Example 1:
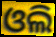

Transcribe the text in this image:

ଓଲି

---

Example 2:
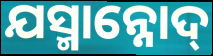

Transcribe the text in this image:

ଯସ୍ମାନ୍ନୋଦ୍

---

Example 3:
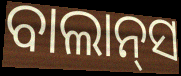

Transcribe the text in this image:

ବାଲାନ୍‌ସ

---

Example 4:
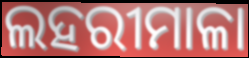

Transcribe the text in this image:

ଲହରୀମାଳା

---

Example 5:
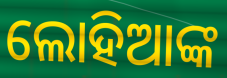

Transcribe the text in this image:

ଲୋହିଆଙ୍କ